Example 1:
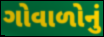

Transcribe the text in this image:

ગોવાળોનું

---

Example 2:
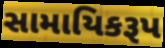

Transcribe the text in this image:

સામાયિકરૂપ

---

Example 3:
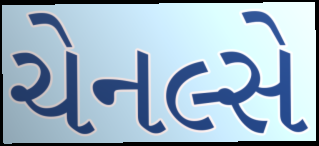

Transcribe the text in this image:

ચેનલ્સે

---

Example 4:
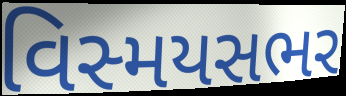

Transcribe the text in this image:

વિસ્મયસભર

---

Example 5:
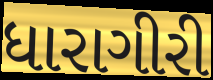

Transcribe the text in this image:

ધારાગીરી